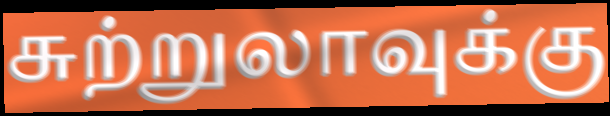
சுற்றுலாவுக்கு